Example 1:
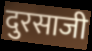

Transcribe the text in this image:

दुरसाजी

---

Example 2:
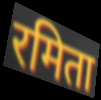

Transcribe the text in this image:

रमिता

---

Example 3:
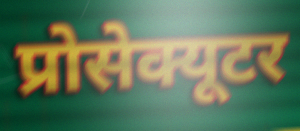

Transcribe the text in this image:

प्रोसेक्यूटर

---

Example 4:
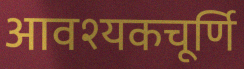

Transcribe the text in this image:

आवश्यकचूर्णि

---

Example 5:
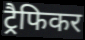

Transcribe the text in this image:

ट्रैफिकर